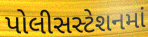
પોલીસસ્ટેશનમાં